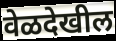
वेळदेखील